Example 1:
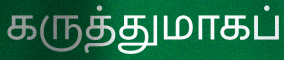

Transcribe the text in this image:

கருத்துமாகப்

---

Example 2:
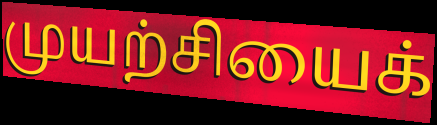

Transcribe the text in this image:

முயற்சியைக்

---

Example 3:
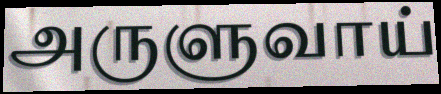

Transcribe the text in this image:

அருளுவாய்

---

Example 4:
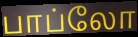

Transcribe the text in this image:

பாப்லோ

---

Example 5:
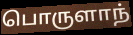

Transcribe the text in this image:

பொருளாந்